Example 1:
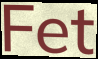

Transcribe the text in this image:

Fet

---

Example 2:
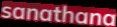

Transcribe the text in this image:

sanathana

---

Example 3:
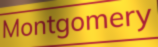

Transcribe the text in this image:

Montgomery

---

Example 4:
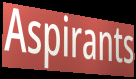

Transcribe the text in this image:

Aspirants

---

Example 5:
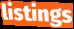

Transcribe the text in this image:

listings